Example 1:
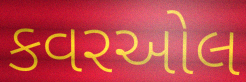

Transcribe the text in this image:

કવરઓલ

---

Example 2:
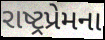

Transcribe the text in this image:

રાષ્ટ્રપ્રેમના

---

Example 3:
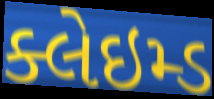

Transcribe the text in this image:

ક્લેઇમ્ડ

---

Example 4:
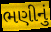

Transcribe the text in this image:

ભણીનું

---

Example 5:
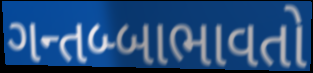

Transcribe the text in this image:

ગન્તબ્બાભાવતો